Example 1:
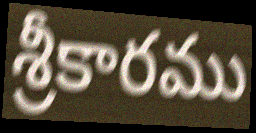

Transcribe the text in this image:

శ్రీకారము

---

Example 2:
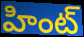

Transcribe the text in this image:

హింట్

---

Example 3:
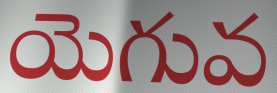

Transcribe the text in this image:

యెగువ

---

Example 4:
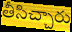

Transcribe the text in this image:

తీసిచ్చారు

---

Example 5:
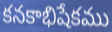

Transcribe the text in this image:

కనకాభిషేకము